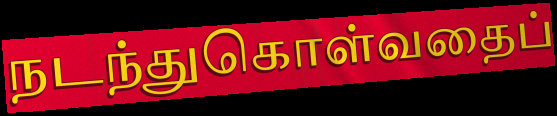
நடந்துகொள்வதைப்